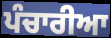
ਪੰਚਾਰੀਆ